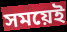
সময়েই